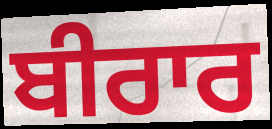
ਬੀਰਾਰ